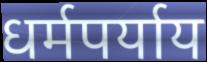
धर्मपर्याय